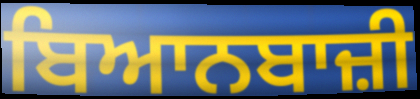
ਬਿਆਨਬਾਜ਼ੀ